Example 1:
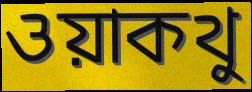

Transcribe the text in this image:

ওয়াকথু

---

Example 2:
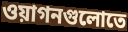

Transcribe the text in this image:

ওয়াগনগুলোতে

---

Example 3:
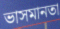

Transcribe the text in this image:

ভাসমানতা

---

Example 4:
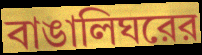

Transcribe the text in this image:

বাঙালিঘরের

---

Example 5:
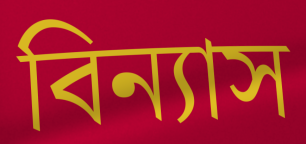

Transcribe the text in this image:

বিন্যাস